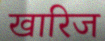
खारिज